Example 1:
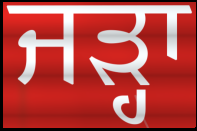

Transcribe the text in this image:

ਜੜ੍ਹਾ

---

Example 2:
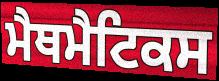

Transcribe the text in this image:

ਮੈਥਮੈਟਿਕਸ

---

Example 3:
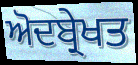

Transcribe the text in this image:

ਅੋਦਬ੍ਰੇਖਤ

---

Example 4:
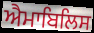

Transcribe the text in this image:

ਐਮਾਬਿਲਿਸ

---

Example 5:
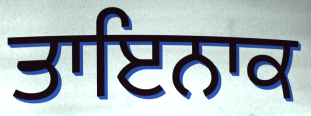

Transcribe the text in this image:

ਤਾਇਨਾਕ